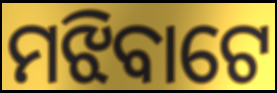
ମଝିବାଟେ